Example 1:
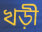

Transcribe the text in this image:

খড়ী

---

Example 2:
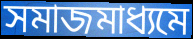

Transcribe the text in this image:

সমাজমাধ্যমে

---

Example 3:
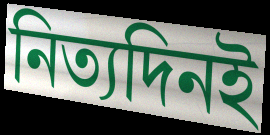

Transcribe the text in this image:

নিত্যদিনই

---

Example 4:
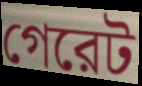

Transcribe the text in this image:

গেরেট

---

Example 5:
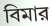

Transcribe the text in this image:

বিমার